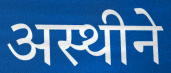
अस्थीने